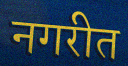
नगरीत